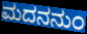
ಮದನನುಂ